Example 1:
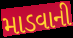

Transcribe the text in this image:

માડવાની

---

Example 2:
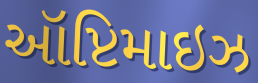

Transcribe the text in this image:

ઑપ્ટિમાઇઝ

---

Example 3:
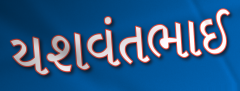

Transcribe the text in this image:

યશવંતભાઈ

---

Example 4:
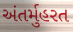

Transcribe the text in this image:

અંતર્મુહરત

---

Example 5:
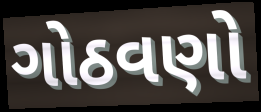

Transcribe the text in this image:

ગોઠવણો